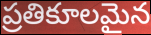
ప్రతికూలమైన